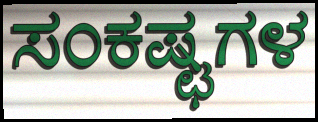
ಸಂಕಷ್ಟಗಳ